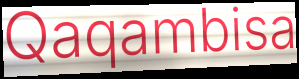
Qaqambisa